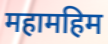
महामहिम